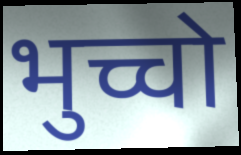
भुच्चो